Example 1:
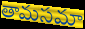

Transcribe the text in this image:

తామసమా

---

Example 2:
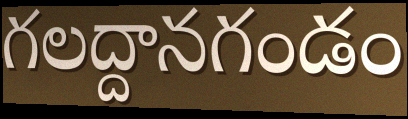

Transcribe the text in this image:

గలద్దానగండం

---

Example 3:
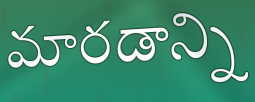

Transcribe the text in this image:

మారడాన్ని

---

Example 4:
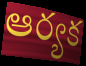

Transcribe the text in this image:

ఆర్యక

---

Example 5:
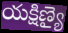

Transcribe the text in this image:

యక్షిణ్యై